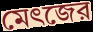
মেৎজের